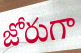
జోరుగా